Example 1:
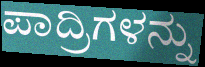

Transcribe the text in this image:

ಪಾದ್ರಿಗಳನ್ನು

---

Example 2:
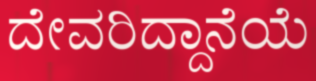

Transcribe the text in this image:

ದೇವರಿದ್ದಾನೆಯೆ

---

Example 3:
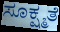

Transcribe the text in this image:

ಸೂಕ್ಷ್ಮತೆ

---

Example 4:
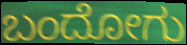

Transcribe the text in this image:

ಬಂದೋಗು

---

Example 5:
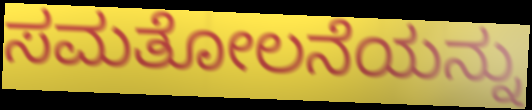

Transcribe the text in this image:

ಸಮತೋಲನೆಯನ್ನು